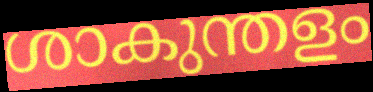
ശാകുന്തളം